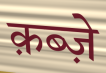
क़ब्ज़े